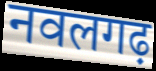
नवलगढ़